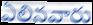
ఏలినవారు